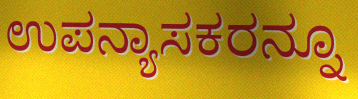
ಉಪನ್ಯಾಸಕರನ್ನೂ